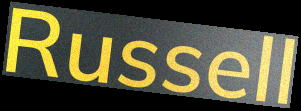
Russell